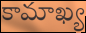
కామాఖ్య